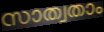
സാത്വതാം